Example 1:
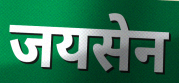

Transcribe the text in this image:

जयसेन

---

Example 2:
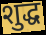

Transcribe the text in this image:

शुद्ध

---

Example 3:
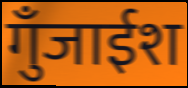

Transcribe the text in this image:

गुँजाईश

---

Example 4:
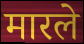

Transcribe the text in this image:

मारले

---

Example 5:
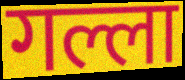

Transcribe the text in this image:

गल्ला